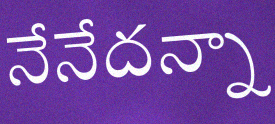
నేనేదన్నా